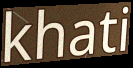
khati